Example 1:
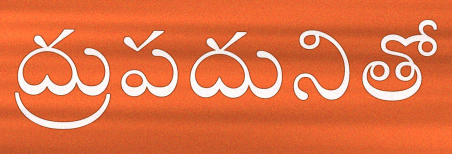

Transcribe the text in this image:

ద్రుపదునితో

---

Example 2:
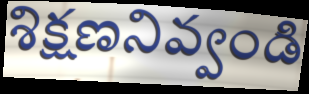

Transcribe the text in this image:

శిక్షణనివ్వండి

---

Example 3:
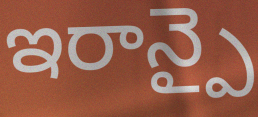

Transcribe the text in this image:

ఇరాన్పై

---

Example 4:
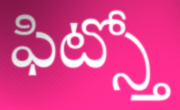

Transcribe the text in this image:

ఫిట్స్తో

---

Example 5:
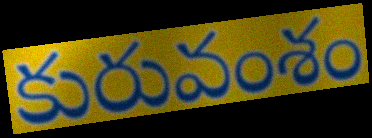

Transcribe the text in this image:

కురువంశం